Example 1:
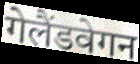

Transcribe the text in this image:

गेलैंडवेगन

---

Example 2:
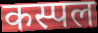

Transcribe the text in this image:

कस्पल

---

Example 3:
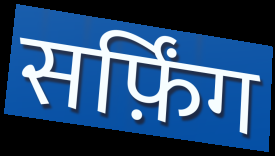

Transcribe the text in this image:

सर्फ़िंग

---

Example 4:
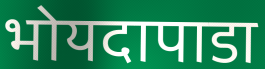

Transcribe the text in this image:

भोयदापाडा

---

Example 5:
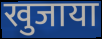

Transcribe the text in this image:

खुजाया